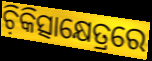
ଚ଼ିକିତ୍ସାକ୍ଷେତ୍ରରେ